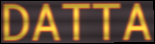
DATTA